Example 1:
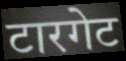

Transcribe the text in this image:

टारगेट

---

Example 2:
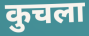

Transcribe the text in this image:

कुचला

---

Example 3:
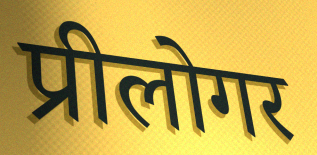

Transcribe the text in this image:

प्रीलोगर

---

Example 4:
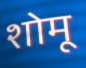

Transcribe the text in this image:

शोमू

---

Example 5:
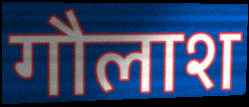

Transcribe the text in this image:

गौलाश